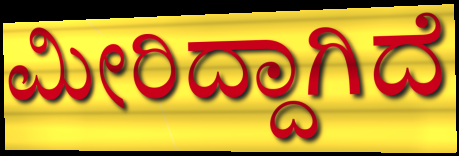
ಮೀರಿದ್ದಾಗಿದೆ